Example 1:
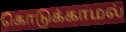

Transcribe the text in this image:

கொடுக்காமல்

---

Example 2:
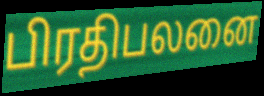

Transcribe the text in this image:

பிரதிபலனை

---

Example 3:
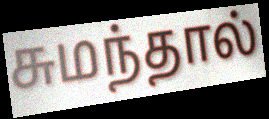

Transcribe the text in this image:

சுமந்தால்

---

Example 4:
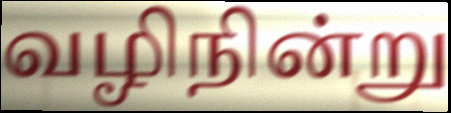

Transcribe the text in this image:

வழிநின்று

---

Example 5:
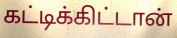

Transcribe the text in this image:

கட்டிக்கிட்டான்